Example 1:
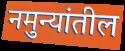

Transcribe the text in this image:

नमुन्यांतील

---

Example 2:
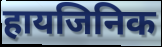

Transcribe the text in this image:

हायजिनिक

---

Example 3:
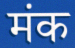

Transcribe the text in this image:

मंक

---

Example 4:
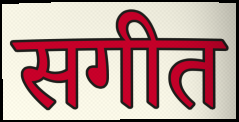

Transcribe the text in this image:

सगीत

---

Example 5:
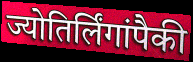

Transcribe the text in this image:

ज्योतिर्लिंगांपैकी